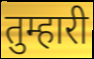
तुम्हारी